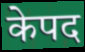
केपद